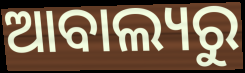
ଆବାଲ୍ୟରୁ